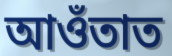
আওঁতাত